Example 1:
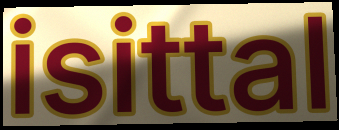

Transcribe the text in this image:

isittal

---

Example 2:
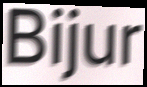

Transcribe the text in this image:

Bijur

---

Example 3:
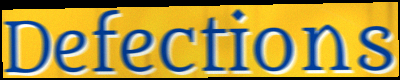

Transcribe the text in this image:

Defections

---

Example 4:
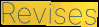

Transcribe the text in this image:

Revises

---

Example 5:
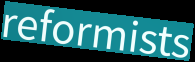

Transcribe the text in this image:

reformists